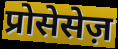
प्रोसेसेज़